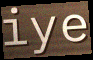
iye